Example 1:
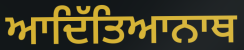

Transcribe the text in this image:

ਆਦਿੱਤਿਆਨਾਥ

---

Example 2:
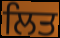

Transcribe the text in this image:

ਲਿਤ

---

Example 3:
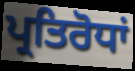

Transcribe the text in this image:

ਪ੍ਰਤਿਰੋਧਾਂ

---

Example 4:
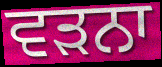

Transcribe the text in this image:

ਵੜਨਾ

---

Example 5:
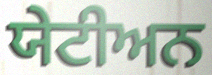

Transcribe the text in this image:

ਯੇਟੀਅਨ